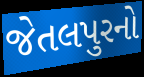
જેતલપુરનો